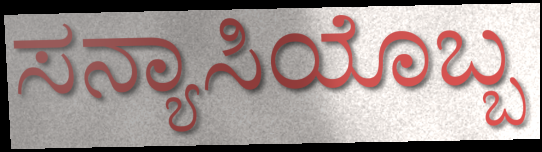
ಸನ್ಯಾಸಿಯೊಬ್ಬ